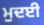
ਮੁਦਈ